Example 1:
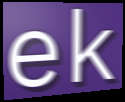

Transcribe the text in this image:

ek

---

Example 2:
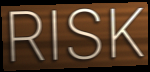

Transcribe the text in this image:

RISK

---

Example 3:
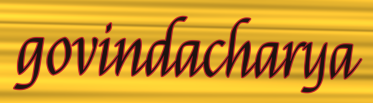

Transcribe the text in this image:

govindacharya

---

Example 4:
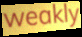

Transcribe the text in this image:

weakly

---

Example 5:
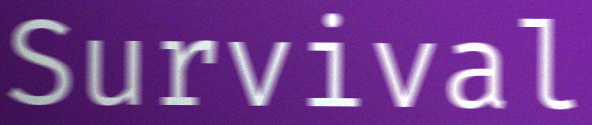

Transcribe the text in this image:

Survival